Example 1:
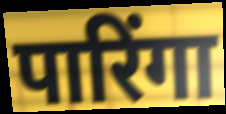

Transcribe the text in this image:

पारिंगा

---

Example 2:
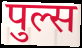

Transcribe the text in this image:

पुल्स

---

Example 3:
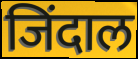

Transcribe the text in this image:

जिंदाल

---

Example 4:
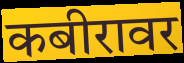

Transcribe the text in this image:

कबीरावर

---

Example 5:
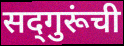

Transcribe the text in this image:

सद्‌गुरूंची